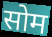
सोम